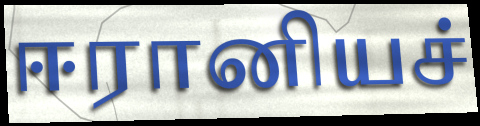
ஈரானியச்